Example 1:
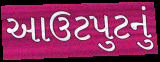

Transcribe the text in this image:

આઉટપુટનું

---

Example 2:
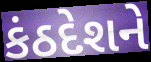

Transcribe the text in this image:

કંઠદેશને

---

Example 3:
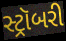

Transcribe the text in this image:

સ્ટ્રૉબરી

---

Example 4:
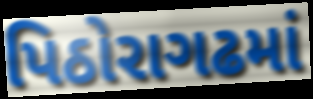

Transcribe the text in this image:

પિઠોરાગઢમાં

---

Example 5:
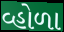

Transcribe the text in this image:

વ્હોળા